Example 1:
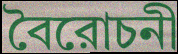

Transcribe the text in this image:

বৈরোচনী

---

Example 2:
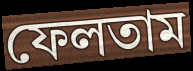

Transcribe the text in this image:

ফেলতাম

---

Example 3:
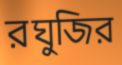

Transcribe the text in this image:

রঘুজির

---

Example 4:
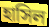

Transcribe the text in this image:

হাসিল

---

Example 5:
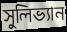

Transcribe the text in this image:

সুলিভ্যান